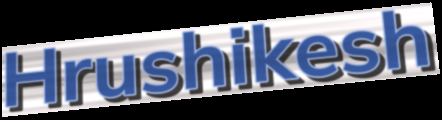
Hrushikesh